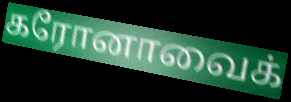
கரோனாவைக்